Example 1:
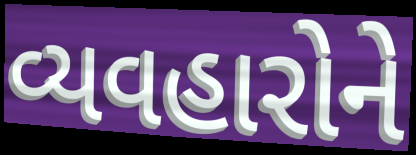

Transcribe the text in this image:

વ્યવહારોને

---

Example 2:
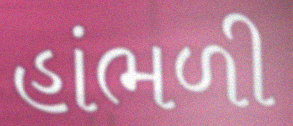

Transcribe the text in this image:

હાંભળી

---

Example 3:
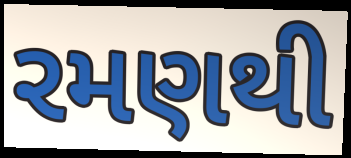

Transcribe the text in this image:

રમણથી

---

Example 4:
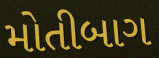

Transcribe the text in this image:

મોતીબાગ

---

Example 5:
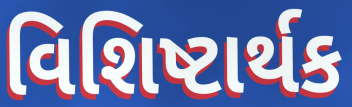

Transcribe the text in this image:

વિશિષ્ટાર્થક